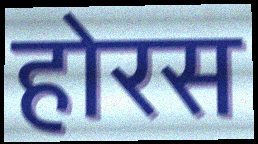
होरस